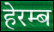
हेरम्ब